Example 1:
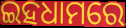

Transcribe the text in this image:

ଇହଧାମରେ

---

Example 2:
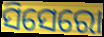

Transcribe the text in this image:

ସିସେରୋ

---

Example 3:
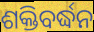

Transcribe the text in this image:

ଶକ୍ତିବର୍ଦ୍ଧନ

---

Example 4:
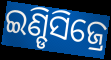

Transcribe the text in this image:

ଇଣ୍ଡିସିଜ୍ରେ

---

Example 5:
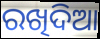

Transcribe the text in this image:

ରଖିଦିଆ